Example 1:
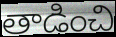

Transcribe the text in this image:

తాడించి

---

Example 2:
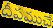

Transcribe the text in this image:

దీపముచే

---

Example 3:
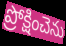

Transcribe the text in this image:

ప్రోక్షించెను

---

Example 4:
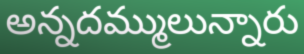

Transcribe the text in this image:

అన్నదమ్ములున్నారు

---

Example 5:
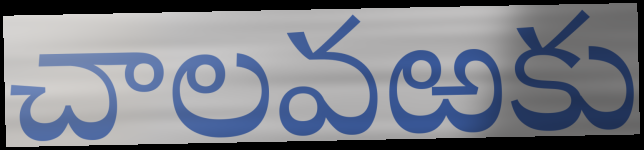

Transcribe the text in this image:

చాలవఱకు